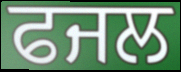
ਫਜਲ